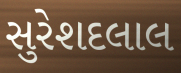
સુરેશદલાલ